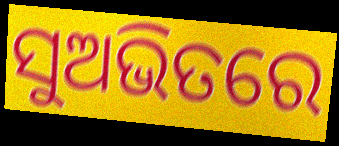
ସୁଅଭିତରେ